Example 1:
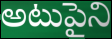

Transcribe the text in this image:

అటుపైని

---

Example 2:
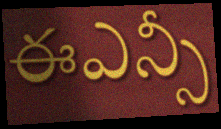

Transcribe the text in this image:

ఈఎన్సీ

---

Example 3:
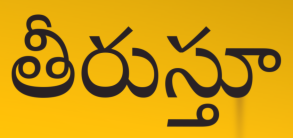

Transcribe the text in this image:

తీరుస్తూ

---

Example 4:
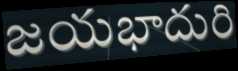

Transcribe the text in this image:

జయభాదురి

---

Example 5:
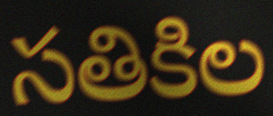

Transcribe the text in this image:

సతికిల